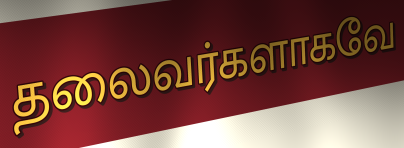
தலைவர்களாகவே